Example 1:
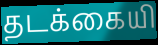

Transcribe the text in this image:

தடக்கையி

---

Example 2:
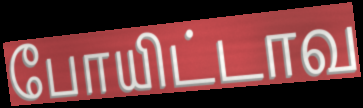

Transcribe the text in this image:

போயிட்டாவ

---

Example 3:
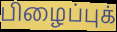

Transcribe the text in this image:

பிழைப்புக்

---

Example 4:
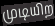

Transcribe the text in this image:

முடியிற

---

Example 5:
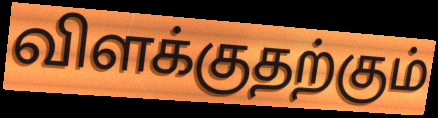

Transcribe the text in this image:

விளக்குதற்கும்